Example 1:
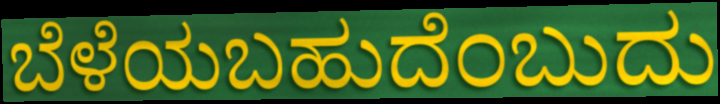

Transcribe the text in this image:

ಬೆಳೆಯಬಹುದೆಂಬುದು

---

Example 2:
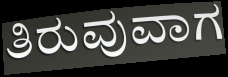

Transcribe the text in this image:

ತಿರುವುವಾಗ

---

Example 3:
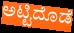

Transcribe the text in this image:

ಅಟ್ಟಿದೊಡೆ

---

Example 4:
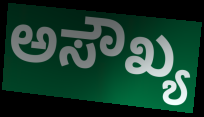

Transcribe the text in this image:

ಅಸೌಖ್ಯ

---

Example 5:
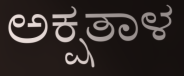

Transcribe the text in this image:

ಅಕ್ಷತಾಳ